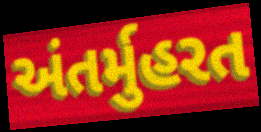
અંતર્મુહરત